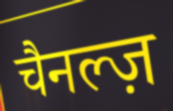
चैनल्ज़